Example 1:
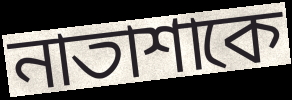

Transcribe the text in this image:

নাতাশাকে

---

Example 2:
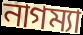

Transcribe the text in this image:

নাগম্যা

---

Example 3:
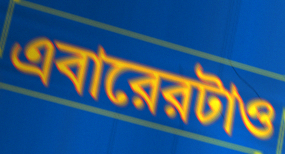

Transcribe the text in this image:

এবারেরটাও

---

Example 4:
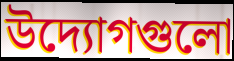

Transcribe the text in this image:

উদ্যোগগুলো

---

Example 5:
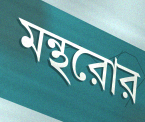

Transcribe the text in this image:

মন্থরোর